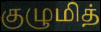
குழுமித்